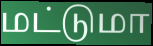
மட்டுமா